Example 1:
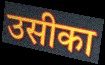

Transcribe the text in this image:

उसीका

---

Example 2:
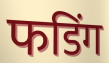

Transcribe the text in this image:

फडिंग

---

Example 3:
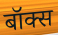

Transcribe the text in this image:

बॉक्स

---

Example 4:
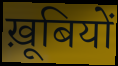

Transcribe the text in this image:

ख़ूबियों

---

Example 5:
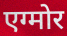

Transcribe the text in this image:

एग्मोर